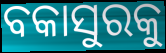
ବକାସୁରକୁ